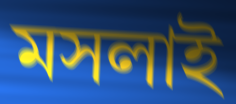
মসলাই